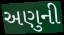
અણુની